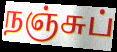
நஞ்சுப்